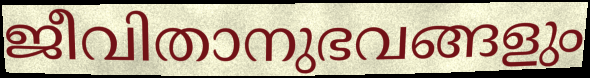
ജീവിതാനുഭവങ്ങളും